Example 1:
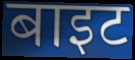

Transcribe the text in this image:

बाइट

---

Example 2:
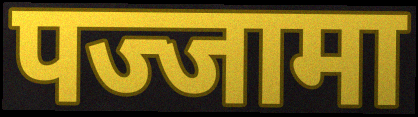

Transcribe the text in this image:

पज्जामा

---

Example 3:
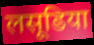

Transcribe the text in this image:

लसूडिया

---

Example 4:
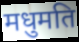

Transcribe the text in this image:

मधुमति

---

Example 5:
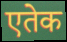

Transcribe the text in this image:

एतेक